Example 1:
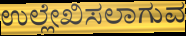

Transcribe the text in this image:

ಉಲ್ಲೇಖಿಸಲಾಗುವ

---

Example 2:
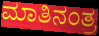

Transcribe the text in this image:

ಮಾತಿನಂತ್ರ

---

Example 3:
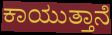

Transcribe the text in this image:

ಕಾಯುತ್ತಾನೆ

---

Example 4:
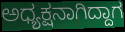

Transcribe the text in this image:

ಅಧ್ಯಕ್ಷನಾಗಿದ್ದಾಗ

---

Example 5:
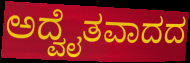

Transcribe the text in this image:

ಅದ್ವೈತವಾದದ